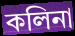
কলিনা